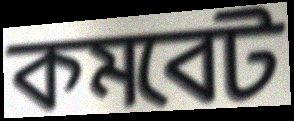
কমবেট